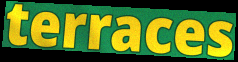
terraces